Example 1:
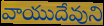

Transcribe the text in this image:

వాయుదేవుని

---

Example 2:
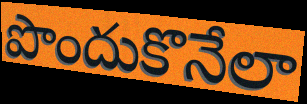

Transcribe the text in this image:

పొందుకొనేలా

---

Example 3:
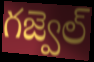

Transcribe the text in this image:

గజ్వెల్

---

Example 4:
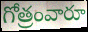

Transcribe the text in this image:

గోత్రంవారూ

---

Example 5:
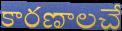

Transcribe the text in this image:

కారణాలచే